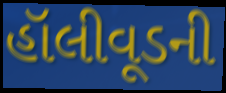
હૉલીવૂડની